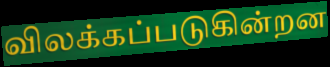
விலக்கப்படுகின்றன